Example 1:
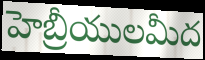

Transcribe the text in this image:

హెబ్రీయులమీద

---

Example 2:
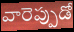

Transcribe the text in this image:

వారెప్పుడో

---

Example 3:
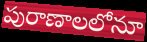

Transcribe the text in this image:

పురాణాలలోనూ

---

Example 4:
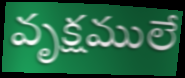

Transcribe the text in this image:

వృక్షములే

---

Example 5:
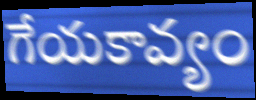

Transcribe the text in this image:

గేయకావ్యం